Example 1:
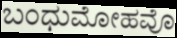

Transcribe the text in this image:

ಬಂಧುಮೋಹವೊ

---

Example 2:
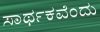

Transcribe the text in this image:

ಸಾರ್ಥಕವೆಂದು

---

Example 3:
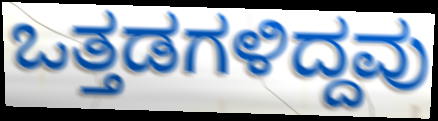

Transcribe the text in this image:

ಒತ್ತಡಗಳಿದ್ದವು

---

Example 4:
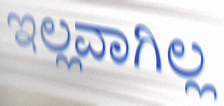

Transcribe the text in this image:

ಇಲ್ಲವಾಗಿಲ್ಲ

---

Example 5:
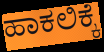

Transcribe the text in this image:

ಹಾಕಲಿಕ್ಕೆ